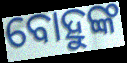
ବୋହୁଙ୍କ